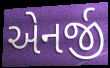
એનર્જી